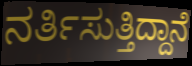
ನರ್ತಿಸುತ್ತಿದ್ದಾನೆ